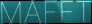
MAFFT